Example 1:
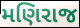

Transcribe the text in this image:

મણિરાજ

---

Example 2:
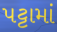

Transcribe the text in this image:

પટ્ટામાં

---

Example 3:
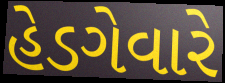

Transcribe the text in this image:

હેડગેવારે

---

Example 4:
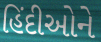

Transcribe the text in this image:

હિંદીઓને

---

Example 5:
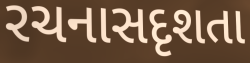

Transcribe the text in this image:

રચનાસદૃશતા